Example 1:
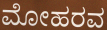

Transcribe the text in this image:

ಮೋಹರವ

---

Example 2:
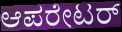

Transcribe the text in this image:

ಆಪರೇಟರ್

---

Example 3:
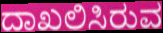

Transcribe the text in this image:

ದಾಖಲಿಸಿರುವ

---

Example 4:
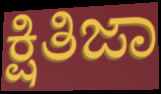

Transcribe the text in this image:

ಕ್ಷಿತಿಜಾ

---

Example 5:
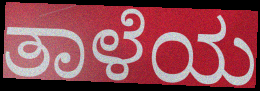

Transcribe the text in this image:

ತಾಳೆಯ